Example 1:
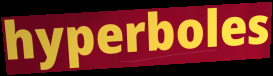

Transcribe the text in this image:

hyperboles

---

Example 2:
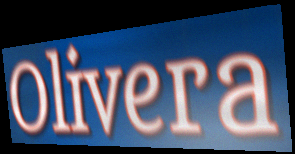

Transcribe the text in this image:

Olivera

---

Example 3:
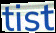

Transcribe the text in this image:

tist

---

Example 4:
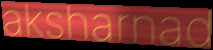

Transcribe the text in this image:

aksharnad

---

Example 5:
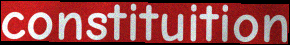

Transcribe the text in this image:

constituition